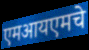
एमआयएमचे